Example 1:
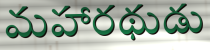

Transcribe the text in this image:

మహారథుడు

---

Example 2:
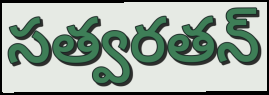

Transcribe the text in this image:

సత్వరతన్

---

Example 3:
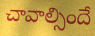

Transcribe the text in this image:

చావాల్సిందే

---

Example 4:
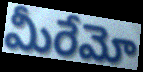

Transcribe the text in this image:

మీరేమో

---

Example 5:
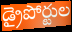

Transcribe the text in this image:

డ్రైపోర్టుల